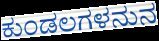
ಕುಂಡಲಗಳನುನ